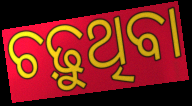
ଚଢ଼ୁଥିବା